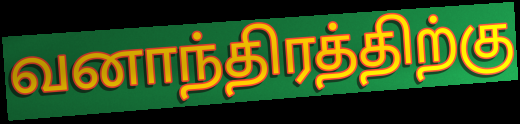
வனாந்திரத்திற்கு